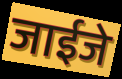
जाईजे